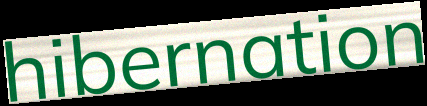
hibernation